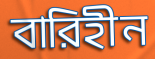
বারিহীন